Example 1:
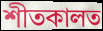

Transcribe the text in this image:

শীতকালত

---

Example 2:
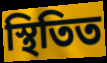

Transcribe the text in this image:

স্থিতিত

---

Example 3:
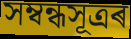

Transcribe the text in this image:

সম্বন্ধসূত্ৰৰ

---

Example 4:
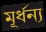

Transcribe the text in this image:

মূৰ্ধন্য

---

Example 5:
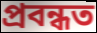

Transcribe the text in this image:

প্ৰবন্ধত